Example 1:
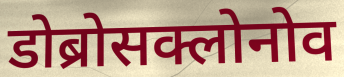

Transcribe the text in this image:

डोब्रोसक्लोनोव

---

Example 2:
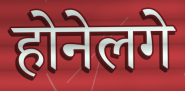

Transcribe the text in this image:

होनेलगे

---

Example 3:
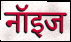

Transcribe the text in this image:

नॉइज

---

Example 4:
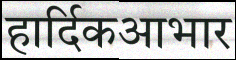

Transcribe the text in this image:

हार्दिकआभार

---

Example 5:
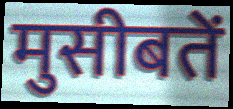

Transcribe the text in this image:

मुसीबतें